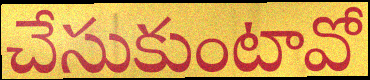
చేసుకుంటావో